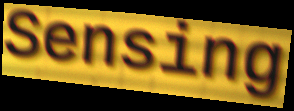
Sensing